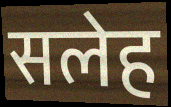
सलेह